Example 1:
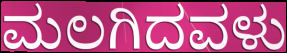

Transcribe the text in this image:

ಮಲಗಿದವಳು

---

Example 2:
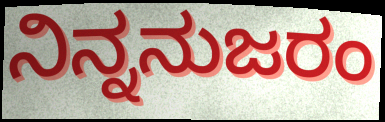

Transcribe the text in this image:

ನಿನ್ನನುಜರಂ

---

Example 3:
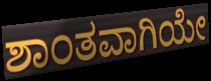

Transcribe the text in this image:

ಶಾಂತವಾಗಿಯೇ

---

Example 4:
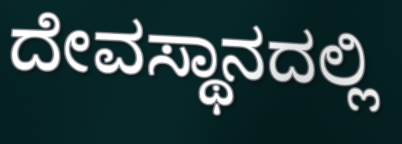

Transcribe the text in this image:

ದೇವಸ್ಥಾನದಲ್ಲಿ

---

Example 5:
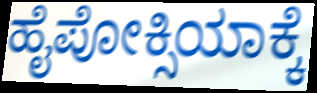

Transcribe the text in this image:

ಹೈಪೋಕ್ಸಿಯಾಕ್ಕೆ